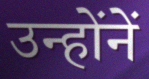
उन्होंनें